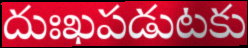
దుఃఖపడుటకు